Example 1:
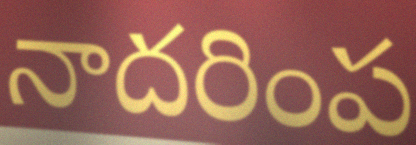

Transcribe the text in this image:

నాదరింప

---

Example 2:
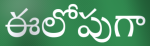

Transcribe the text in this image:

ఈలోపుగా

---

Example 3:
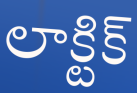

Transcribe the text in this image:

లాక్టిక్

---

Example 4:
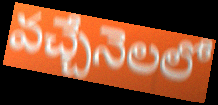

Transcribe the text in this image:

వచ్చేనెలలో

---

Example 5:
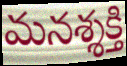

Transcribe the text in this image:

మనశ్శక్తి